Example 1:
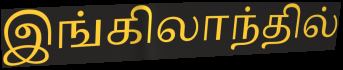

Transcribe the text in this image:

இங்கிலாந்தில்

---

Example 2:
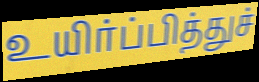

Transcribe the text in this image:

உயிர்ப்பித்துச்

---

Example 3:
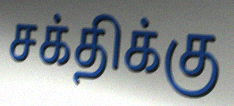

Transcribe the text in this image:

சக்திக்கு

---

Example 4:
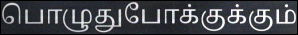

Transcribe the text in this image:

பொழுதுபோக்குக்கும்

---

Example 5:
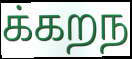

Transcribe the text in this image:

க்கறந